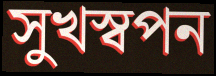
সুখস্বপন